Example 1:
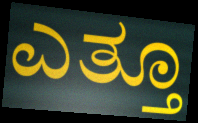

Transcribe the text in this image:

ಎತ್ತೂ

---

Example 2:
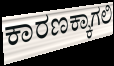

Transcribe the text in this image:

ಕಾರಣಕ್ಕಾಗಲಿ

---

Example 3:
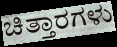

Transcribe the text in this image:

ಚಿತ್ತಾರಗಳು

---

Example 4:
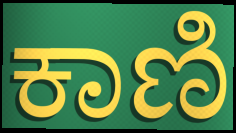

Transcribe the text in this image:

ಕಾಣಿ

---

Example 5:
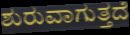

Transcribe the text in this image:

ಶುರುವಾಗುತ್ತದೆ